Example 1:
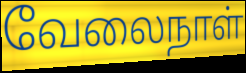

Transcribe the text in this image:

வேலைநாள்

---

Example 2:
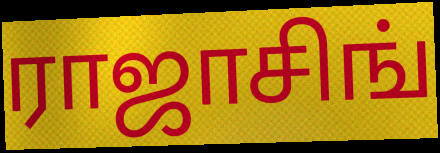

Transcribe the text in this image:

ராஜாசிங்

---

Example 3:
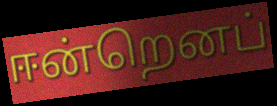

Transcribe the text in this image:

ஈன்றெனப்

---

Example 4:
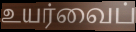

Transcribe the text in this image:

உயர்வைப்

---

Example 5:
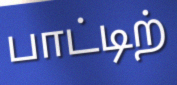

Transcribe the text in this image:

பாட்டிற்